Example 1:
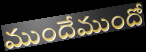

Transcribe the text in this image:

ముందేముందో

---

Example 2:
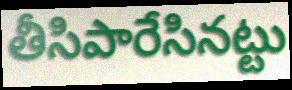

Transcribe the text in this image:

తీసిపారేసినట్టు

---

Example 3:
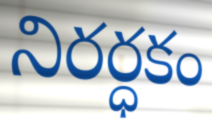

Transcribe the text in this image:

నిరర్ధకం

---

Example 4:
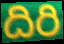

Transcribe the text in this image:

దిరి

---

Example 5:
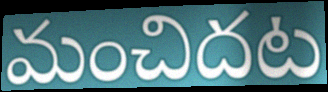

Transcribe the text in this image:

మంచిదట